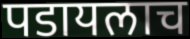
पडायलाच